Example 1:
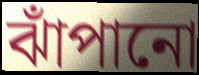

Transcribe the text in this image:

ঝাঁপানো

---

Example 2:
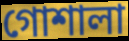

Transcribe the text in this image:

গোশালা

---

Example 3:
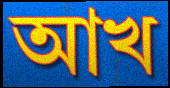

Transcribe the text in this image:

আখ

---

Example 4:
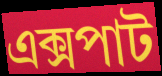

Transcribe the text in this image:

এক্সপাট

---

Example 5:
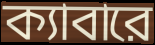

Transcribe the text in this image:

ক্যাবারে